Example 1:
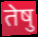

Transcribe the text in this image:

तेषु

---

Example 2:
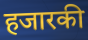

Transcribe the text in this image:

हजारकी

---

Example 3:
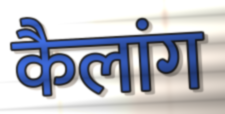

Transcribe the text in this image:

कैलांग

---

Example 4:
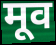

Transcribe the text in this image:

मूव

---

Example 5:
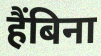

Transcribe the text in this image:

हैंबिना